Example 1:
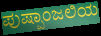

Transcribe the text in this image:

ಪುಷ್ಪಾಂಜಲಿಯ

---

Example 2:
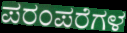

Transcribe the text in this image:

ಪರಂಪರೆಗಳ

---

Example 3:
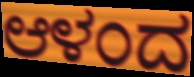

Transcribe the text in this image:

ಆಳಂದ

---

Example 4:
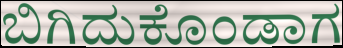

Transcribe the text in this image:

ಬಿಗಿದುಕೊಂಡಾಗ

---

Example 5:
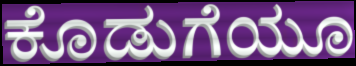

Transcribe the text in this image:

ಕೊಡುಗೆಯೂ